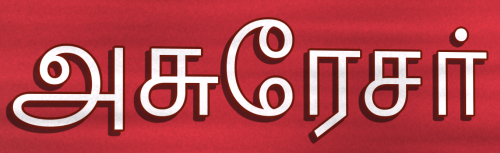
அசுரேசர்